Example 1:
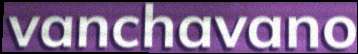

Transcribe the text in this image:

vanchavano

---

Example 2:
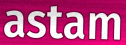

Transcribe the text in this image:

astam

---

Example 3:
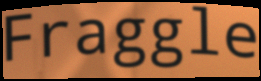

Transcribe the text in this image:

Fraggle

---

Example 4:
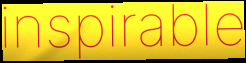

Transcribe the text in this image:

inspirable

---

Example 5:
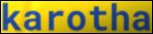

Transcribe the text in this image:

karotha